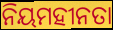
ନିୟମହୀନତା